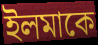
ইলমাকে